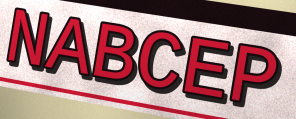
NABCEP